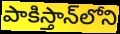
పాకిస్తాన్‌లోని